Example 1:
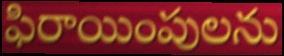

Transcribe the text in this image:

ఫిరాయింపులను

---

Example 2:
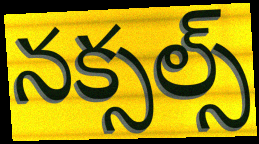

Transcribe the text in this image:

నక్సల్స్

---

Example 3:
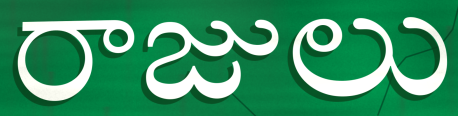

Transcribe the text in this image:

రాజులు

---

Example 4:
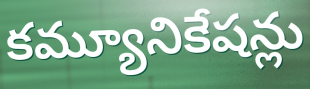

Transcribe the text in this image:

కమ్యూనికేషన్లు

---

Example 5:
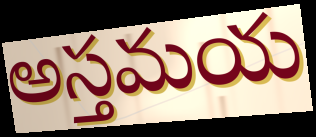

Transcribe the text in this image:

అస్తమయ